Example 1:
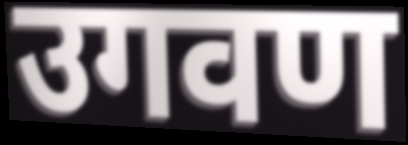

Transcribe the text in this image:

उगवण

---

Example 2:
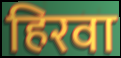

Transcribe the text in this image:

हिरवा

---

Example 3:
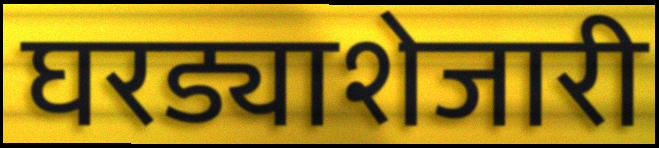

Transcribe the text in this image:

घरड्याशेजारी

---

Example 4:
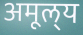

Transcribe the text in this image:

अमूल्य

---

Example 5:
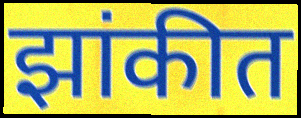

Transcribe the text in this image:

झांकीत